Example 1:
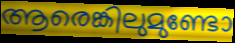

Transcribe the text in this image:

ആരെങ്കിലുമുണ്ടോ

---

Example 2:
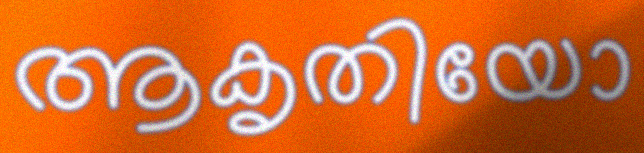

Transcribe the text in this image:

ആകൃതിയോ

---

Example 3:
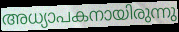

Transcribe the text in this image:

അധ്യാപകനായിരുന്നു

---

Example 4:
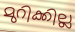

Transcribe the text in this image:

മുറിക്കില്ല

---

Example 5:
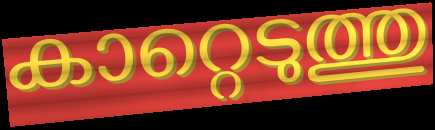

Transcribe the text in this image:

കാറ്റെടുത്തു